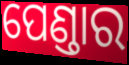
ପେଣ୍ଡାର